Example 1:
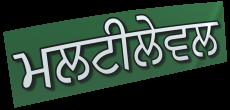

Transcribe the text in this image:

ਮਲਟੀਲੇਵਲ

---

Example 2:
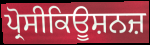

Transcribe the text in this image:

ਪ੍ਰੋਸੀਕਿਊਸ਼ਨਜ਼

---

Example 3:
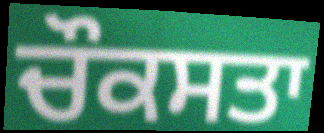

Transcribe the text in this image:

ਚੌਕਸਤਾ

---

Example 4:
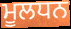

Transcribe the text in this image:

ਮੂਲਧਨ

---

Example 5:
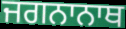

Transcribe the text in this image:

ਜਗਨਾਨਾਥ